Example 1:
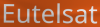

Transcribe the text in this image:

Eutelsat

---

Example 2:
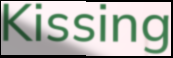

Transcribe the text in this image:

Kissing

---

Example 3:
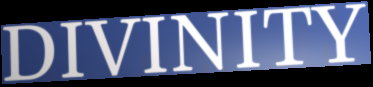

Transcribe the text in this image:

DIVINITY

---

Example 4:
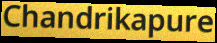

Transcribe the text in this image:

Chandrikapure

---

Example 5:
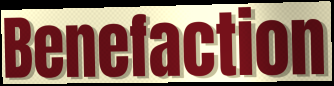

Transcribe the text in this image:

Benefaction